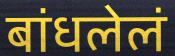
बांधलेलं